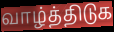
வாழ்த்திடுக